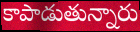
కాపాడుతున్నారు